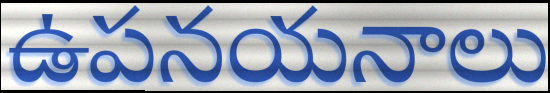
ఉపనయనాలు